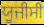
ਯੂਜੀਸੀ